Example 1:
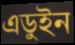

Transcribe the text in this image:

এডুইন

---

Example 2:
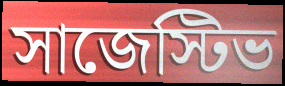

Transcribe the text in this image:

সাজেস্টিভ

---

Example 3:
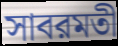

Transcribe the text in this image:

সাবরমতী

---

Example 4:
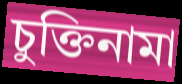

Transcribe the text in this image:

চুক্তিনামা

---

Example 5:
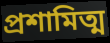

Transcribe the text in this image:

প্রশামিত্ম